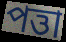
পত্তা